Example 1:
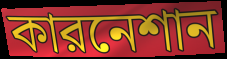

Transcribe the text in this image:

কারনেশান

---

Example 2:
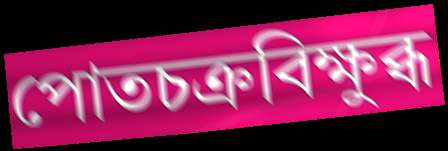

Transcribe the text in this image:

পোতচক্রবিক্ষুব্ধ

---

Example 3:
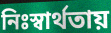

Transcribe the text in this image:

নিঃস্বার্থতায়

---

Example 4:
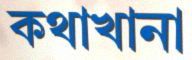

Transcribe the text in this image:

কথাখানা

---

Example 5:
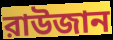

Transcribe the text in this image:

রাউজান